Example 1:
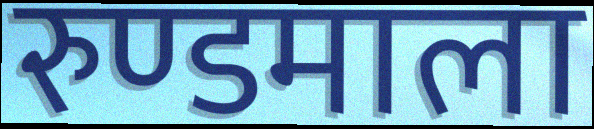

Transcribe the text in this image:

रुण्डमाला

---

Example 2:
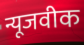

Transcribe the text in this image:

न्यूजवीक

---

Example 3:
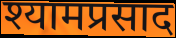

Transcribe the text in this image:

श्यामप्रसाद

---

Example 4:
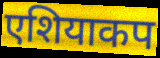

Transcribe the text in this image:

एशियाकप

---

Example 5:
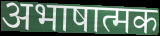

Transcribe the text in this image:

अभाषात्मक